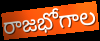
రాజభోగాల